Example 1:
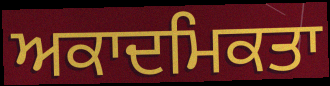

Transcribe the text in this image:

ਅਕਾਦਮਿਕਤਾ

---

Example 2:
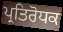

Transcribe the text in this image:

ਪ੍ਰਤਿਰੋਧਕ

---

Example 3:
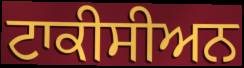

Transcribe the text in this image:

ਟਾਕੀਸੀਅਨ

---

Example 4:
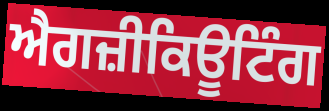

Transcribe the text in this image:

ਐਗਜ਼ੀਕਿਊਟਿੰਗ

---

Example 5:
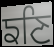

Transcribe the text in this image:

ਙਣਿ